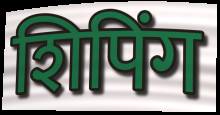
शिपिंग